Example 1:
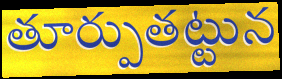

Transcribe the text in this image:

తూర్పుతట్టున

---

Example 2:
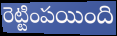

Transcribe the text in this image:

రెట్టింపయింది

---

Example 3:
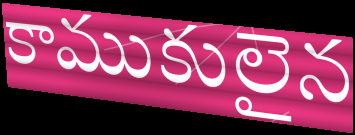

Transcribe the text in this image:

కాముకులైన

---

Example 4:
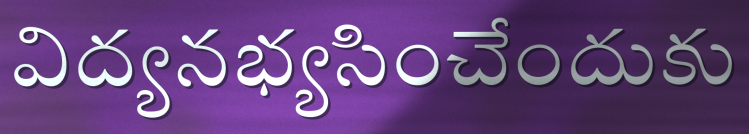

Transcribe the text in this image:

విద్యనభ్యసించేందుకు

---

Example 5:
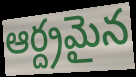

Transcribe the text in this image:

ఆర్ద్రమైన